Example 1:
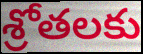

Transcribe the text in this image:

శ్రోతలకు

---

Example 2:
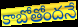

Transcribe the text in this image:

కాబోతోందనే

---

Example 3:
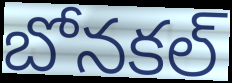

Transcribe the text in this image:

బోనకల్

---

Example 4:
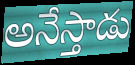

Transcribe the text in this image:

అనేస్తాడు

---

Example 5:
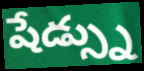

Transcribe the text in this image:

షేడ్స్ను